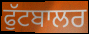
ਫੁੱਟਬਾਲਰ